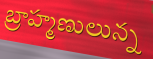
బ్రాహ్మణులున్న